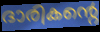
ദാരികന്റെ